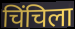
चिंचिला